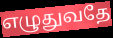
எழுதுவதே